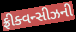
ફ્રીક્વન્સીઝની